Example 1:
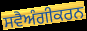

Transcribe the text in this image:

ਸਵੈਅੰਗੀਕਰਨ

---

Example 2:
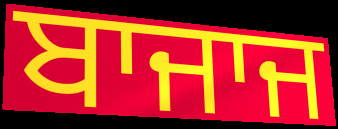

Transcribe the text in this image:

ਬਾਜਾਜ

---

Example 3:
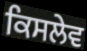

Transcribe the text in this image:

ਕਿਸਲੇਵ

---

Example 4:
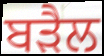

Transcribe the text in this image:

ਬੜੈਲ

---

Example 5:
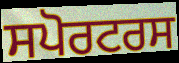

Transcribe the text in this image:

ਸਪੋਰਟਰਸ